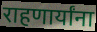
राहणार्यांना